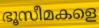
ഭൂസീമകളെ